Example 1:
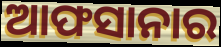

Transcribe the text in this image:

ଆଫସାନାର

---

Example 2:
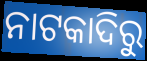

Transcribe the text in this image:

ନାଟକାଦିରୁ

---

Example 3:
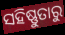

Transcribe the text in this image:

ସହିଷ୍ଣୁତାରୁ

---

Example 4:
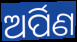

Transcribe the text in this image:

ଅର୍ପିଣ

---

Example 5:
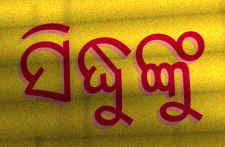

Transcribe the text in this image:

ସିଦ୍ଧୁଙ୍କୁ